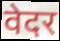
वेदर